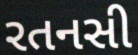
રતનસી